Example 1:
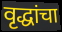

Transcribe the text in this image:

वृद्धांचा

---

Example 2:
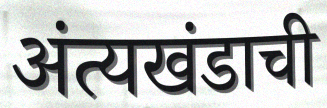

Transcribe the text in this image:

अंत्यखंडाची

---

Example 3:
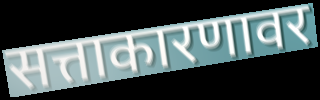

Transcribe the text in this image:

सत्ताकारणावर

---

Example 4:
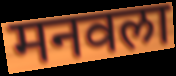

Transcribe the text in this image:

मनवला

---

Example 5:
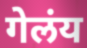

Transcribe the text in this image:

गेलंय